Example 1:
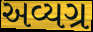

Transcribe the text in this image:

અવ્યગ્ર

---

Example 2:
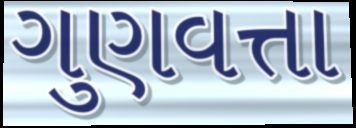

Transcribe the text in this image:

ગુણવત્તા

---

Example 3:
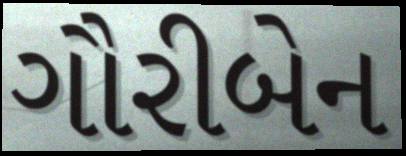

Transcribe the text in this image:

ગૌરીબેન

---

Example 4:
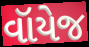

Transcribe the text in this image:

વૉયેજ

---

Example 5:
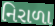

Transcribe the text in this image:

નિરાળા